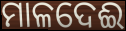
ମାଳଦେଈ